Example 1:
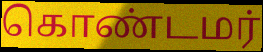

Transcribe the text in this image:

கொண்டமர்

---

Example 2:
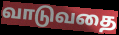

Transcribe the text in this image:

வாடுவதை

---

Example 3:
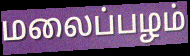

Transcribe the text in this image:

மலைப்பழம்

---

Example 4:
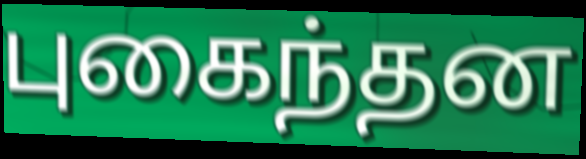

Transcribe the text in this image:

புகைந்தன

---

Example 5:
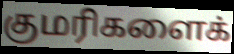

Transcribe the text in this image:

குமரிகளைக்